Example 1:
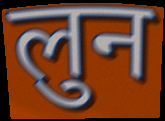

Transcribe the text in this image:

लुन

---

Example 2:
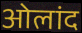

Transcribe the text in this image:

ओलांद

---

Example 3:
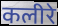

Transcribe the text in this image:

कलीरे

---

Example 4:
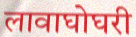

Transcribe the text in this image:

लावाघोघरी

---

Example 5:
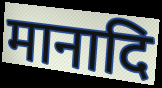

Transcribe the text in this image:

मानादि